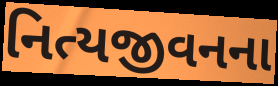
નિત્યજીવનના